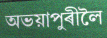
অভয়াপুৰীলৈ